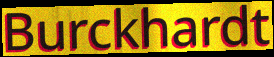
Burckhardt